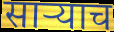
साऱ्याच